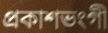
প্ৰকাশভংগী